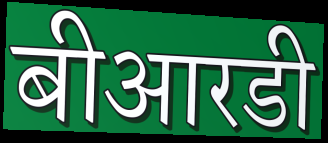
बीआरडी